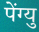
पेंग्यु